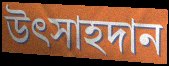
উৎসাহদান